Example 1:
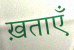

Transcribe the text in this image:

ख़ताएँ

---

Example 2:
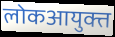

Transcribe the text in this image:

लोकआयुक्त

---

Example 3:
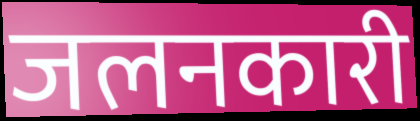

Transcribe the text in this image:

जलनकारी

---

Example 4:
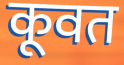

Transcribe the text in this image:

कूवत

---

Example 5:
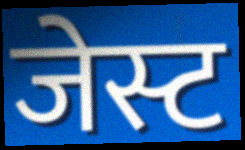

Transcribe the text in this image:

जेस्‍ट